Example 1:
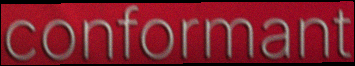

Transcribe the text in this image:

conformant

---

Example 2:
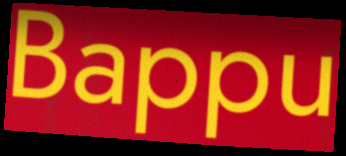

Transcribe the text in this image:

Bappu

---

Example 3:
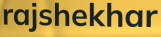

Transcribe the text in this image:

rajshekhar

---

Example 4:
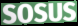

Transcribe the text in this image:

SOSUS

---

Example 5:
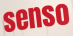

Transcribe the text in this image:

senso